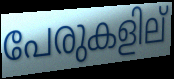
പേരുകളില്